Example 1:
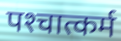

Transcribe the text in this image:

पश्चात्कर्म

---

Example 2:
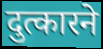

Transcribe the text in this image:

दुत्कारने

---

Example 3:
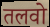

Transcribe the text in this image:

तलवो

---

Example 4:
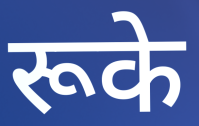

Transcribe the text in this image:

रूके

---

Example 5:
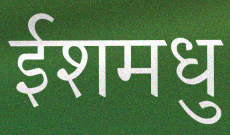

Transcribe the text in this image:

ईशमधु